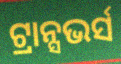
ଟ୍ରାନ୍ସଭର୍ସ